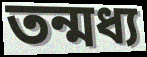
তন্মধ্য